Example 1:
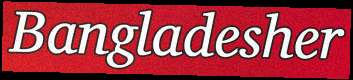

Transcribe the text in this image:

Bangladesher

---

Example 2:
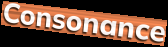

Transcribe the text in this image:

Consonance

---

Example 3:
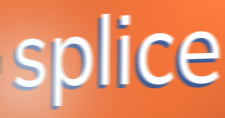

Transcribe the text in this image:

splice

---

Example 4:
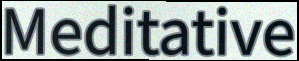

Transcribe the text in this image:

Meditative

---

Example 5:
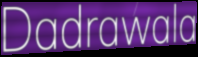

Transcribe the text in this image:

Dadrawala